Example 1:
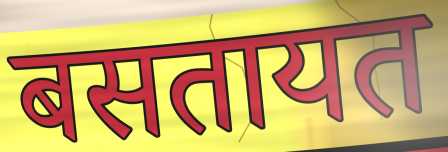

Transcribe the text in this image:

बसतायत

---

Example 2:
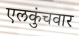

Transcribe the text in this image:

एलकुंचवार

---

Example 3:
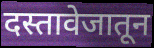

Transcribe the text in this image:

दस्तावेजातून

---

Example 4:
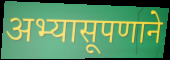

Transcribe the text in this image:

अभ्यासूपणाने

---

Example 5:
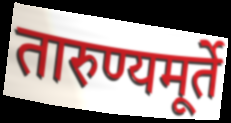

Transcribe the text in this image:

तारुण्यमूर्ते